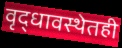
वृद्धावस्थेतही